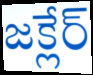
జక్లేర్